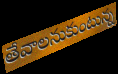
తేవాలనుకుంటున్న